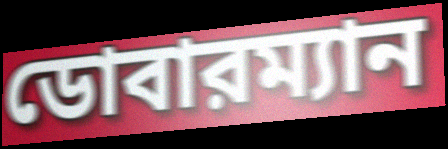
ডোবারম্যান